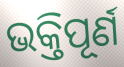
ଭକ୍ତିପୂର୍ଣ